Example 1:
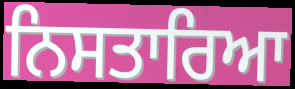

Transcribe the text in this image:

ਨਿਸਤਾਰਿਆ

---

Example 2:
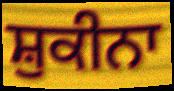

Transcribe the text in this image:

ਸ਼ੁਕੀਨਾ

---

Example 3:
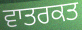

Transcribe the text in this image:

ਵਾਤਰਕਤ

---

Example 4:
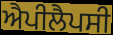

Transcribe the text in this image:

ਐਪੀਲੈਪਸੀ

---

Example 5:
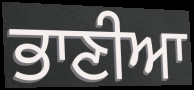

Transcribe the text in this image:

ਭਾਣੀਆ